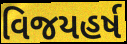
વિજયહર્ષ